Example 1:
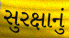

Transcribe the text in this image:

સુરક્ષાનું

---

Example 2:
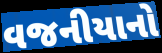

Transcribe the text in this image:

વજનીયાનો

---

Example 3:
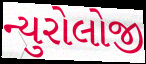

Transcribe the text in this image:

ન્યુરોલોજી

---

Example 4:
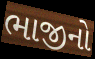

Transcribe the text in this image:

ભાજીનો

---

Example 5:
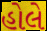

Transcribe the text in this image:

હોલે